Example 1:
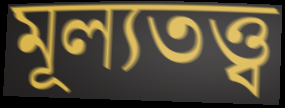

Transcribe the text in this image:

মূল্যতত্ত্ব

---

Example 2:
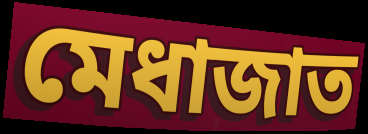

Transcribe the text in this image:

মেধাজাত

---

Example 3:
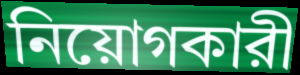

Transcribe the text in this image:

নিয়োগকারী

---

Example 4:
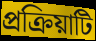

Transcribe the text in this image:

প্রক্রিয়াটি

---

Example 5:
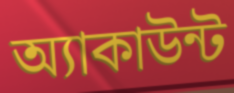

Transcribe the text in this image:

অ্যাকাউন্ট